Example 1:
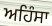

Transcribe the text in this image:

ਅਹਿੰਸਾ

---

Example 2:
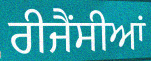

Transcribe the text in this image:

ਰੀਜੈਂਸੀਆਂ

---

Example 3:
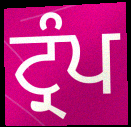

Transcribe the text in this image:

ਟ੍ਰੰਪ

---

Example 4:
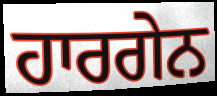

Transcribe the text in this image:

ਹਾਰਗੇਨ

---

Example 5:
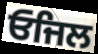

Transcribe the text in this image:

ਓਜਿਲ